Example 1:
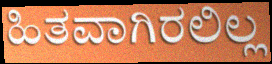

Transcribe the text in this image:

ಹಿತವಾಗಿರಲಿಲ್ಲ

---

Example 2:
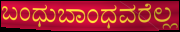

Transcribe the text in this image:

ಬಂಧುಬಾಂಧವರೆಲ್ಲ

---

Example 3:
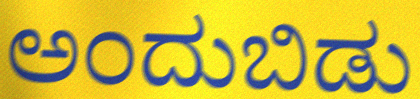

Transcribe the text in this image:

ಅಂದುಬಿಡು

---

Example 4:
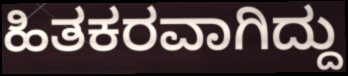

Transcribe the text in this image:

ಹಿತಕರವಾಗಿದ್ದು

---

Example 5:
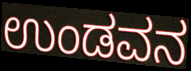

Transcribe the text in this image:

ಉಂಡವನ